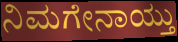
ನಿಮಗೇನಾಯ್ತು